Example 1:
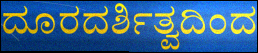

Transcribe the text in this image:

ದೂರದರ್ಶಿತ್ವದಿಂದ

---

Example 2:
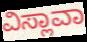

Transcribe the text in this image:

ವಿಸ್ಲಾವಾ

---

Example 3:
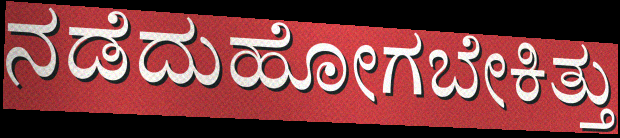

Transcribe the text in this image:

ನಡೆದುಹೋಗಬೇಕಿತ್ತು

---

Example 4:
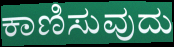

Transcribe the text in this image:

ಕಾಣಿಸುವುದು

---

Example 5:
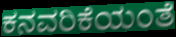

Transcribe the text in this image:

ಕನವರಿಕೆಯಂತೆ